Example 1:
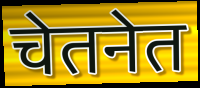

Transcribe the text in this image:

चेतनेत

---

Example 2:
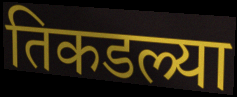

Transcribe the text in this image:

तिकडल्या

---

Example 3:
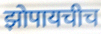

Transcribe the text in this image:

झोपायचीच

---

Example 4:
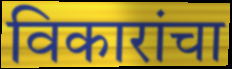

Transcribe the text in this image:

विकारांचा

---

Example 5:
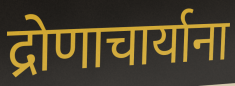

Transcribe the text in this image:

द्रोणाचार्याना